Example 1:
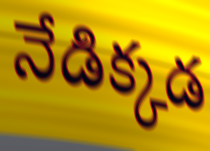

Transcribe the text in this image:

నేడిక్కడ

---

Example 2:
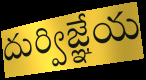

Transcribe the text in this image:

దుర్విజ్ఞేయ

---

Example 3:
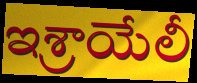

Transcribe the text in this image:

ఇశ్రాయేలీ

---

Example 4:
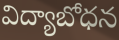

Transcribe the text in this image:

విద్యాబోధన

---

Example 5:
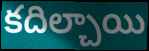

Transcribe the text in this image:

కదిల్చాయి